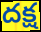
దక్ష